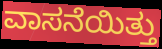
ವಾಸನೆಯಿತ್ತು